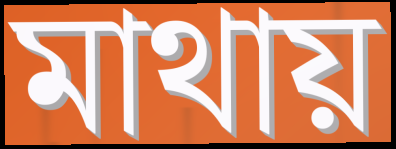
মাথায়